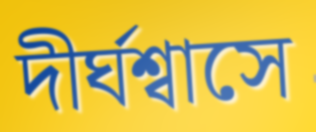
দীর্ঘশ্বাসে